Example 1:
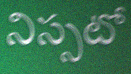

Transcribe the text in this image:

నిస్సటో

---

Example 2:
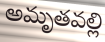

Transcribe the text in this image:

అమృతవల్లి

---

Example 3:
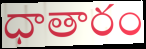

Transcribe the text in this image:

ధాతారం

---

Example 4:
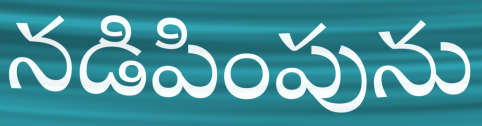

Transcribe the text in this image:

నడిపింపును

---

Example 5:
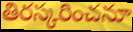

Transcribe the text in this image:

తిరస్కరించనూ